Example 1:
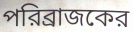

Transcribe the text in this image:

পরিব্রাজকের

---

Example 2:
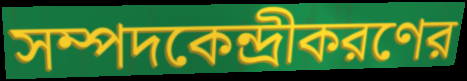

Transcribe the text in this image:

সম্পদকেন্দ্রীকরণের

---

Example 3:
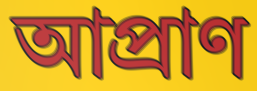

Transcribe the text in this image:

আপ্রাণ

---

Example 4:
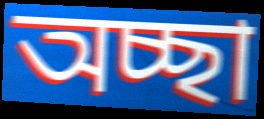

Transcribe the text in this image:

অচ্ছা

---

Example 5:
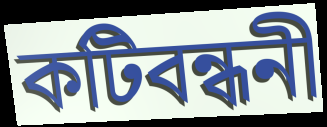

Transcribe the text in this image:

কটিবন্ধনী